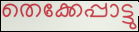
തെക്കേപ്പാട്ടു